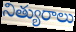
నిత్యురాలు